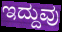
ಇದ್ದುವು